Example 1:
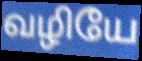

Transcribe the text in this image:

வழியே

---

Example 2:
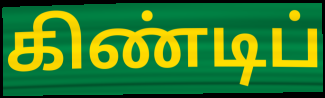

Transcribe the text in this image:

கிண்டிப்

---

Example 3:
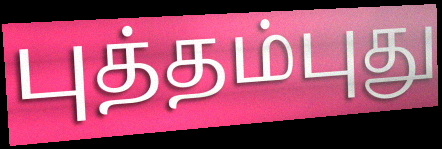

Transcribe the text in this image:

புத்தம்புது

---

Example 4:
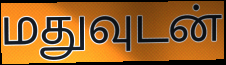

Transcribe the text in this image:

மதுவுடன்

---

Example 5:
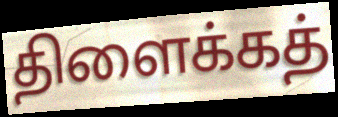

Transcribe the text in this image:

திளைக்கத்